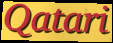
Qatari